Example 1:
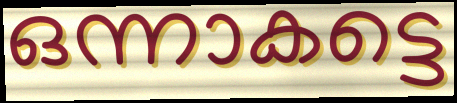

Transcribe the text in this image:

ഒന്നാകട്ടെ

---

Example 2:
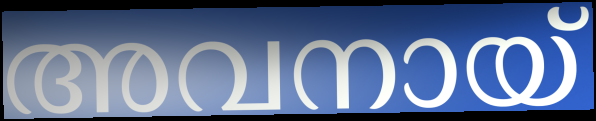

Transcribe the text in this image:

അവനായ്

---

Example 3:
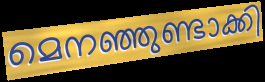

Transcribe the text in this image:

മെനഞ്ഞുണ്ടാക്കി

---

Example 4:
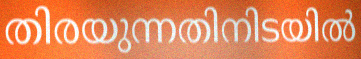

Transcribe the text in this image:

തിരയുന്നതിനിടയിൽ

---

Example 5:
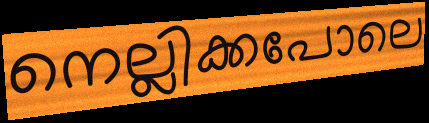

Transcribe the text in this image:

നെല്ലിക്കപോലെ